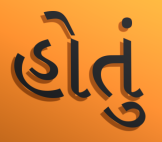
હોતું